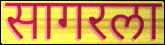
सागरला